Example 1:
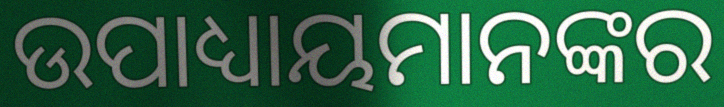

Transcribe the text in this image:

ଉପାଧ୍ୟାୟମାନଙ୍କର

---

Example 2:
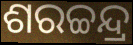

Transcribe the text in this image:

ଶରଚ୍ଚନ୍ଦ୍ର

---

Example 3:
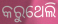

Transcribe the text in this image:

କରୁଥେଲି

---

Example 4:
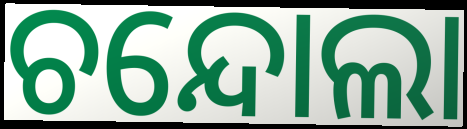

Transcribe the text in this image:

ଚନ୍ଦୋଲା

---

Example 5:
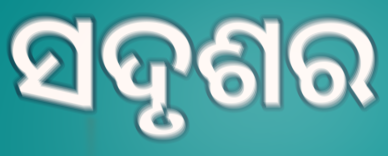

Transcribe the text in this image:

ସଦୃଶର